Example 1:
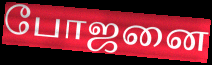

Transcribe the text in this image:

போஜனை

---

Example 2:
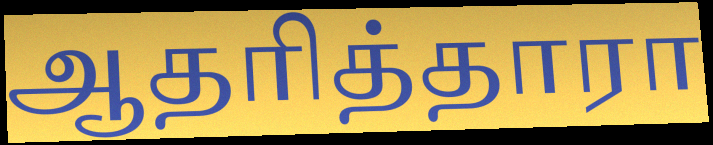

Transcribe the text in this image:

ஆதரித்தாரா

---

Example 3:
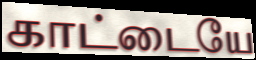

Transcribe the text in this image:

காட்டையே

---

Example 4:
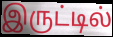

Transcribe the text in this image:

இருட்டில்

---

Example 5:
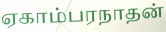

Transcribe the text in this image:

ஏகாம்பரநாதன்